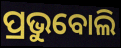
ପ୍ରଭୁବୋଲି